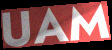
UAM